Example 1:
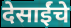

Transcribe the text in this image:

देसाईंचे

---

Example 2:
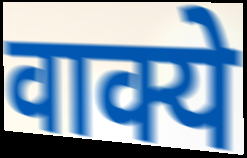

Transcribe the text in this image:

वाक्ये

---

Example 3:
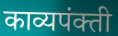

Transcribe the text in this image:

काव्यपंक्ती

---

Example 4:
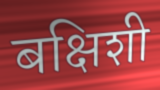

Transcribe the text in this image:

बक्षिशी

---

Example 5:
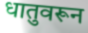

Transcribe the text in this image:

धातुवरून